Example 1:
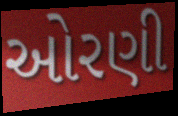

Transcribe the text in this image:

ઓરણી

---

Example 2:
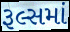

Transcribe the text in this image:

રૂલ્સમાં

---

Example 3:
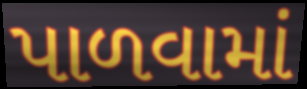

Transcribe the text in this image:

પાળવામાં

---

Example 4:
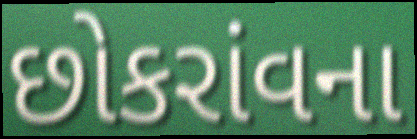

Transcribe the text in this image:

છોકરાંવના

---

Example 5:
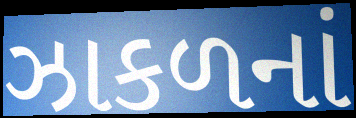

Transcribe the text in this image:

ઝાકળનાં